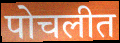
पोचलीत